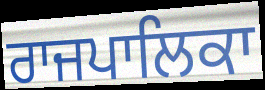
ਰਾਜਪਾਲਿਕਾ